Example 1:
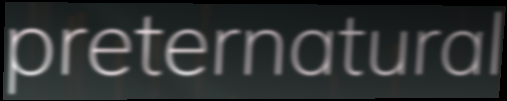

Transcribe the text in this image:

preternatural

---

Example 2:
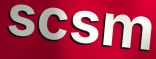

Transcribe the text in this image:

scsm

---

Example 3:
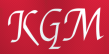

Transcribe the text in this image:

KGM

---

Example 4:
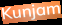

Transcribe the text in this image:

Kunjam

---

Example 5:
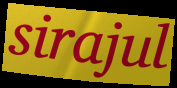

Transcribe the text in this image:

sirajul